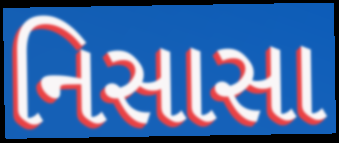
નિસાસા